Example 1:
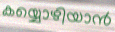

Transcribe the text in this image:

കയ്യൊഴിയാൻ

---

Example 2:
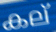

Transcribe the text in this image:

കല്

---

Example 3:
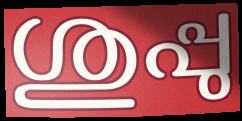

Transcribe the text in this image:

ശുപ്പു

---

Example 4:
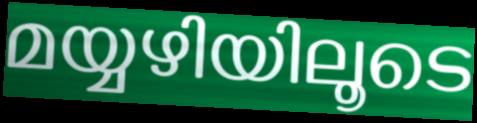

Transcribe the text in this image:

മയ്യഴിയിലൂടെ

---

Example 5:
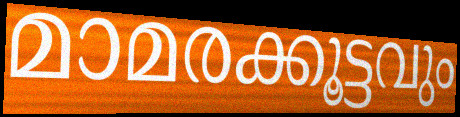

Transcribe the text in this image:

മാമരക്കൂട്ടവും